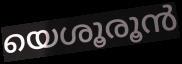
യെശൂരൂൻ